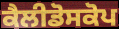
ਕੈਲੀਡੋਸਕੋਪ